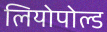
लियोपोल्ड